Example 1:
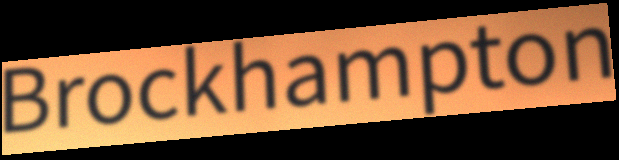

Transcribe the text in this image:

Brockhampton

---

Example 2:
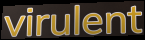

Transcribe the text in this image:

virulent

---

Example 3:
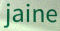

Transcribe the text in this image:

jaine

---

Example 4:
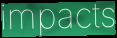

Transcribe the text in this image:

impacts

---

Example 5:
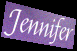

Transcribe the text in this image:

Jennifer